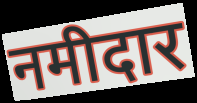
नमीदार